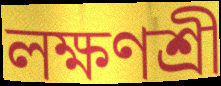
লক্ষণশ্রী